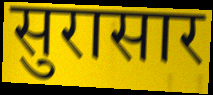
सुरासार